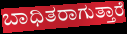
ಬಾಧಿತರಾಗುತ್ತಾರೆ